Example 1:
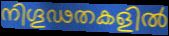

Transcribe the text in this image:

നിഗൂഢതകളിൽ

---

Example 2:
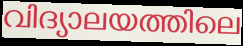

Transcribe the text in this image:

വിദ്യാലയത്തിലെ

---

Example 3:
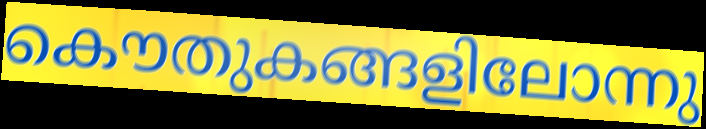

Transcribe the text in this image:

കൌതുകങ്ങളിലോന്നു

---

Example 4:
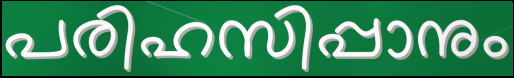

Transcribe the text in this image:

പരിഹസിപ്പാനും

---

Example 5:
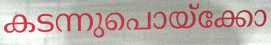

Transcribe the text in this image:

കടന്നുപൊയ്ക്കോ